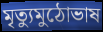
মৃত্যুমুঠোভাষ